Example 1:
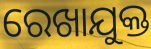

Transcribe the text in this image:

ରେଖାଯୁକ୍ତ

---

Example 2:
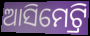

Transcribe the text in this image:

ଆସିମେଟ୍ରି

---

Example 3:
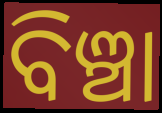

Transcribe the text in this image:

ବିଞ୍ଚା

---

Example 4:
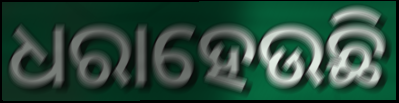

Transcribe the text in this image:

ଧରାହେଉଛି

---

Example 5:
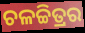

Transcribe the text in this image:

ଚଳଚ୍ଚିତ୍ରର